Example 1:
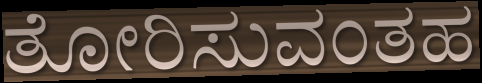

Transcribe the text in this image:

ತೋರಿಸುವಂತಹ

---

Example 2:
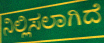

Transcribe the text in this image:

ನಿಲ್ಲಿಸಲಾಗಿದೆ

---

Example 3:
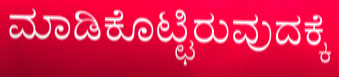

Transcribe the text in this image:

ಮಾಡಿಕೊಟ್ಟಿರುವುದಕ್ಕೆ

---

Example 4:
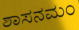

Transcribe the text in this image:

ಶಾಸನಮಂ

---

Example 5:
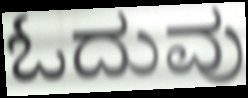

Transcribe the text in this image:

ಓದುವು